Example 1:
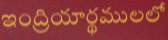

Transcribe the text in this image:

ఇంద్రియార్థములలో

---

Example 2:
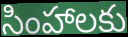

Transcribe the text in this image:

సింహాలకు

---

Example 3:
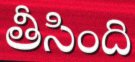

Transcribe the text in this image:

తీసింది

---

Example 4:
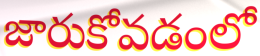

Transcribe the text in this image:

జారుకోవడంలో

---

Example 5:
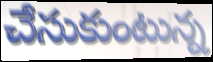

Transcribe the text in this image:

చేసుకుంటున్న